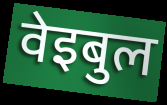
वेइबुल